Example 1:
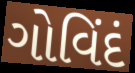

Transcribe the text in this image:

ગોવિંદં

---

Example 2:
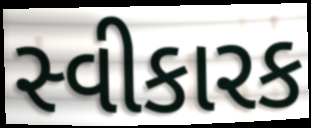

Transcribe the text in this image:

સ્વીકારક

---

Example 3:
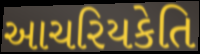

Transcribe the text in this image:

આચરિયકેતિ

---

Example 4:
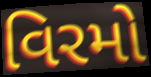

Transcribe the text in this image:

વિરમો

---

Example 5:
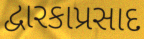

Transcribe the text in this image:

દ્વારકાપ્રસાદ